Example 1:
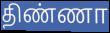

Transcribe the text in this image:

திண்ணா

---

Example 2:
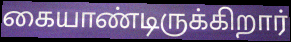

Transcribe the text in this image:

கையாண்டிருக்கிறார்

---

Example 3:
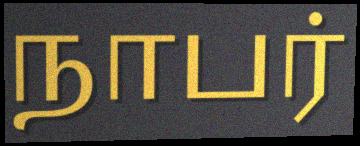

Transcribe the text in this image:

நாபர்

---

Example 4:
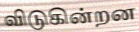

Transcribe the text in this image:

விடுகின்றன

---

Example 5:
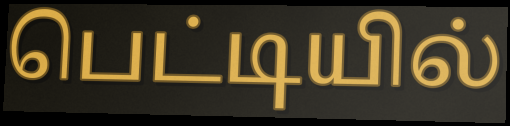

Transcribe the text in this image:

பெட்டியில்